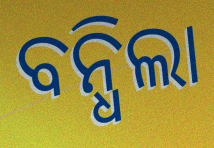
ବନ୍ଧିଲା